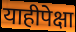
याहीपेक्षा